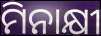
ମିନାକ୍ଷୀ